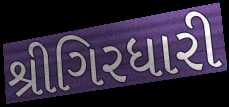
શ્રીગિરધારી